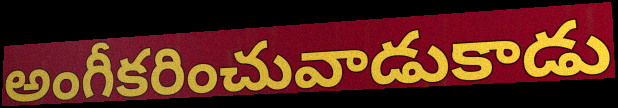
అంగీకరించువాడుకాడు